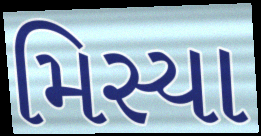
મિસ્યા